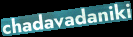
chadavadaniki